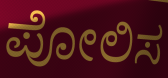
ಪೋಲಿಸ